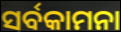
ସର୍ବକାମନା